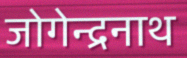
जोगेन्द्रनाथ